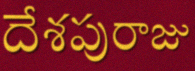
దేశపురాజు